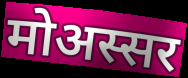
मोअस्सर